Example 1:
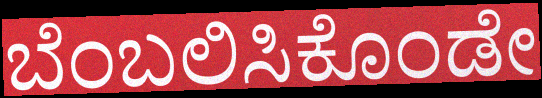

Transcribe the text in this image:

ಬೆಂಬಲಿಸಿಕೊಂಡೇ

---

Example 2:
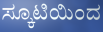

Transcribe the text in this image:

ಸ್ಕೂಟಿಯಿಂದ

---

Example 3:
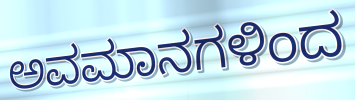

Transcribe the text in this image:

ಅವಮಾನಗಳಿಂದ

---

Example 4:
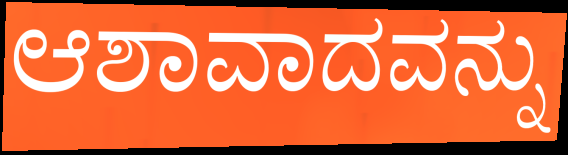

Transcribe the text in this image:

ಆಶಾವಾದವನ್ನು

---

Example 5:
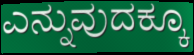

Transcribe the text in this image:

ಎನ್ನುವುದಕ್ಕೂ